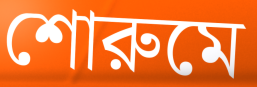
শোরুমে